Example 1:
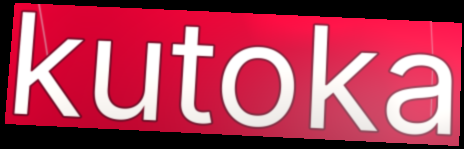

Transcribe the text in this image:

kutoka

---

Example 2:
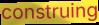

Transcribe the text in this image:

construing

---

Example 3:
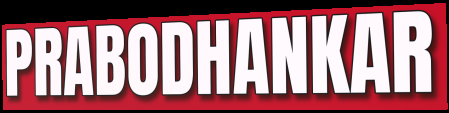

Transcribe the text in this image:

PRABODHANKAR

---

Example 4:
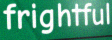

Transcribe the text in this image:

frightful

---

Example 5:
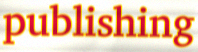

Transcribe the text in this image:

publishing